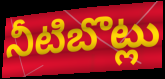
నీటిబొట్లు